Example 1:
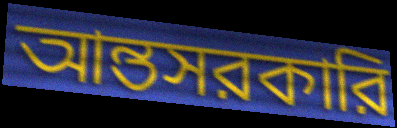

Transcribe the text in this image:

আন্তসরকারি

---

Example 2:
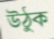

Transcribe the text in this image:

উঠুক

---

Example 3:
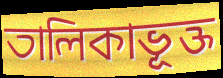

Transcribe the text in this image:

তালিকাভূক্ত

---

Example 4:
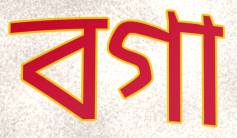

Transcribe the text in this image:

বগা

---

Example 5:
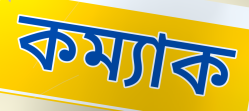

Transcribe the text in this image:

কম্যাক